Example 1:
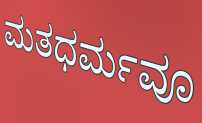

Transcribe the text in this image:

ಮತಧರ್ಮವೂ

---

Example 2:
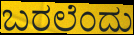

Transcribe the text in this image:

ಬರಲೆಂದು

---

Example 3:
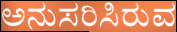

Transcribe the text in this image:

ಅನುಸರಿಸಿರುವ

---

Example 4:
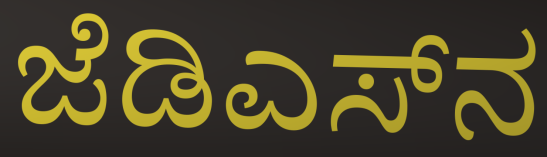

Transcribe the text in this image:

ಜೆಡಿಎಸ್‌ನ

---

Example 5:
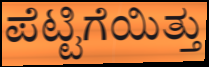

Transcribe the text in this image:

ಪೆಟ್ಟಿಗೆಯಿತ್ತು